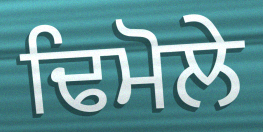
ਢਿਮੋਲੇ